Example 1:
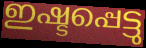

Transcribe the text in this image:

ഇഷ്ടപ്പെട്ടു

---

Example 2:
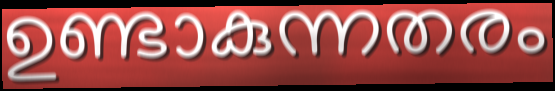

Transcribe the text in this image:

ഉണ്ടാകുന്നതരം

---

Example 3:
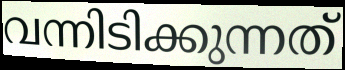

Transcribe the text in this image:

വന്നിടിക്കുന്നത്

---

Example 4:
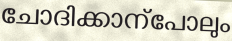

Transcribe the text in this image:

ചോദിക്കാന്പോലും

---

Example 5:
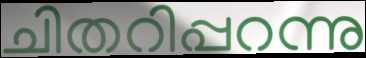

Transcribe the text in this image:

ചിതറിപ്പറന്നു